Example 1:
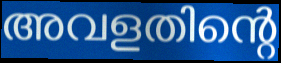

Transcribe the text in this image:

അവളതിന്റെ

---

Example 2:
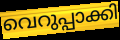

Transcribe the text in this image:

വെറുപ്പാക്കി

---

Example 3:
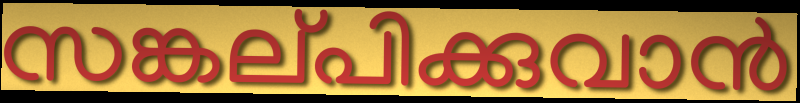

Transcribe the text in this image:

സങ്കല്‌പിക്കുവാൻ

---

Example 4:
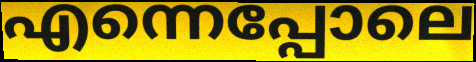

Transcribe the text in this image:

എന്നെപ്പോലെ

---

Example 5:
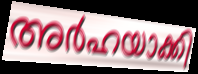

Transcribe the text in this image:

അർഹയാക്കി